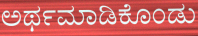
ಅರ್ಥಮಾಡಿಕೊಂಡು